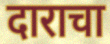
दाराचा